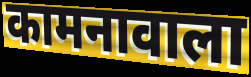
कामनावाला